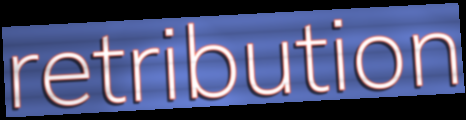
retribution